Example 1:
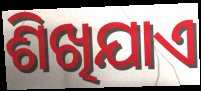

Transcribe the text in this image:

ଶିଖିଯାଏ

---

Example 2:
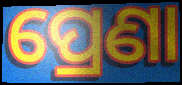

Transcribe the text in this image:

ପ୍ରେଣା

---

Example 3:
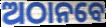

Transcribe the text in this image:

ଅଠାନବେ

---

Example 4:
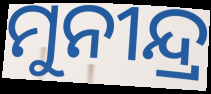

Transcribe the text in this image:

ମୁନୀନ୍ଦ୍ର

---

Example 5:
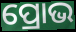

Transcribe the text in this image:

ପ୍ରୋଭ